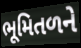
ભૂમિતળને